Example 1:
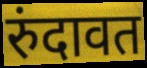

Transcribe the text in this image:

रुंदावत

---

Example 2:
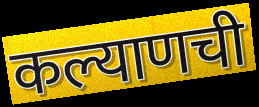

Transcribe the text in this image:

कल्याणची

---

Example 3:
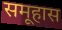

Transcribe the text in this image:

समूहास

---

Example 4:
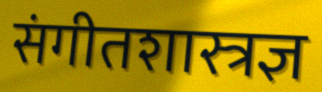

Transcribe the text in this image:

संगीतशास्त्रज्ञ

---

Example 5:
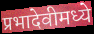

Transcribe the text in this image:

प्रभादेवीमध्ये